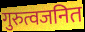
गुरुत्वजनित